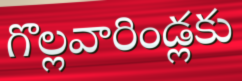
గొల్లవారిండ్లకు